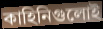
কাহিনিগুলোই